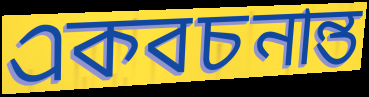
একবচনান্ত